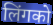
लिंगको